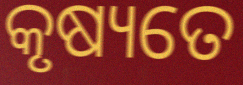
କୃଷ୍ୟତେ